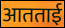
आतताई